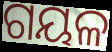
ଗୟଳ